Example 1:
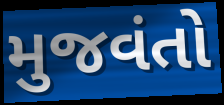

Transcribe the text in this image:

મુજવંતો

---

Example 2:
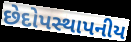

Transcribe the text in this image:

છેદોપસ્થાપનીય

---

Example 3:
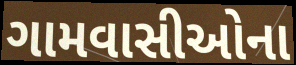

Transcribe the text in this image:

ગામવાસીઓના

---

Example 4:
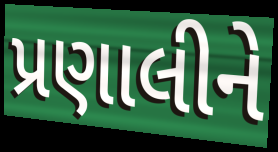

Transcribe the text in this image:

પ્રણાલીને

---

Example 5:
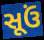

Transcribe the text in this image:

સૂઉં